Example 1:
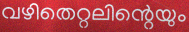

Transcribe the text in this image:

വഴിതെറ്റലിന്റെയും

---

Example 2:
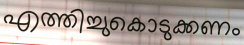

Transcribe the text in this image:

എത്തിച്ചുകൊടുക്കണം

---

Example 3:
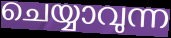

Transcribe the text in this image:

ചെയ്യാവുന്ന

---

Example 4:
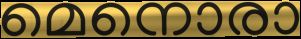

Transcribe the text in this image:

മെനൊരാ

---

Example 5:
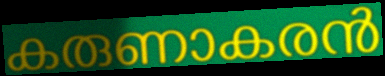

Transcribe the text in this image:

കരുണാകരൻ